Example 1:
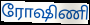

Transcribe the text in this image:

ரோஷிணி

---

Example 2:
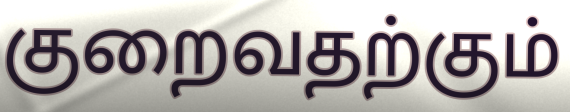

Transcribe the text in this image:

குறைவதற்கும்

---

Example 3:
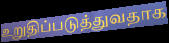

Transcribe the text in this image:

உறுதிப்படுத்துவதாக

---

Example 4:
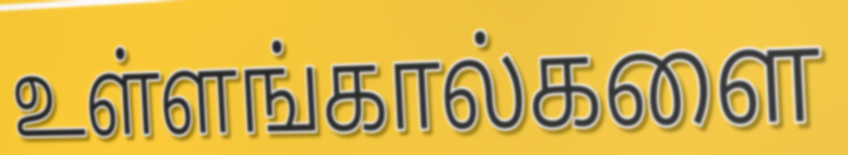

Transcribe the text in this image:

உள்ளங்கால்களை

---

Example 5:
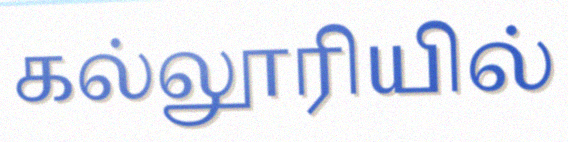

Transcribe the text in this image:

கல்லூரியில்